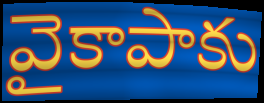
వైకాపాకు